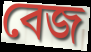
বেজ